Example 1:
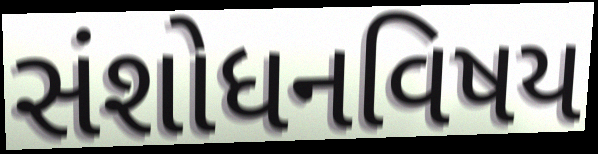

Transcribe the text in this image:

સંશોધનવિષય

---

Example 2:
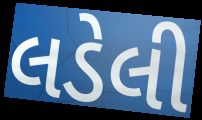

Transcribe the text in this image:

લડેલી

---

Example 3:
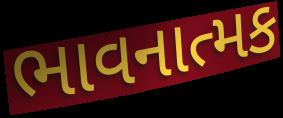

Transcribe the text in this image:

ભાવનાત્મક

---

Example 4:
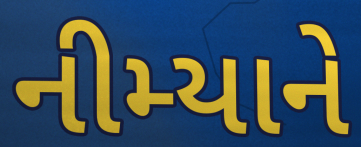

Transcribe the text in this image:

નીમ્યાને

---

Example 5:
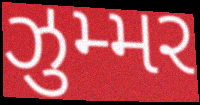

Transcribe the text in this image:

ઝુમ્મર